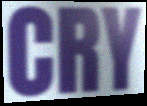
CRY